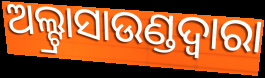
ଅଲ୍ଟ୍ରାସାଉଣ୍ଡଦ୍ୱାରା